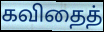
கவிதைத்